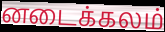
னடைக்கலம்